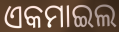
ଏକମାଇଲ